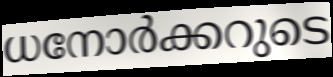
ധനോർക്കറുടെ